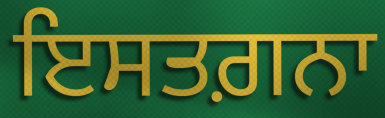
ਇਸਤਗ਼ਨਾ